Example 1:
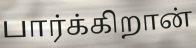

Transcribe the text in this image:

பார்க்கிறான்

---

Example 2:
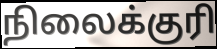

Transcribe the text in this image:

நிலைக்குரி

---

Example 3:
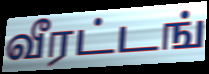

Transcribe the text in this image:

வீரட்டங்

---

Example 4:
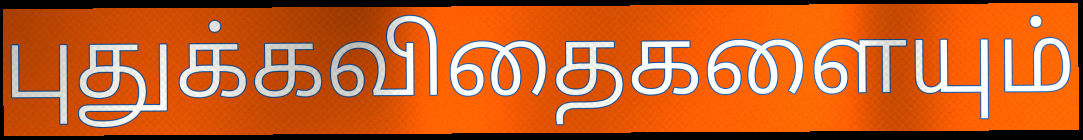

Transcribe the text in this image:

புதுக்கவிதைகளையும்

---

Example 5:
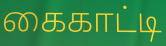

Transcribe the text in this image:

கைகாட்டி